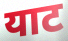
याट